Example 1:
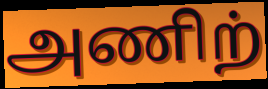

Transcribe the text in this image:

அணிற்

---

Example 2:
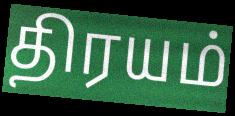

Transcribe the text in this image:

திரயம்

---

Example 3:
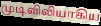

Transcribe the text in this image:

முடிவிலியாகிய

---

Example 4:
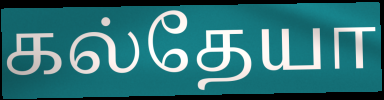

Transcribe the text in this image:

கல்தேயா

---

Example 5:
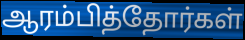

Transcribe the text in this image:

ஆரம்பித்தோர்கள்